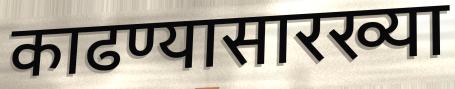
काढण्यासारख्या